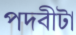
পদবীটা